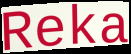
Reka